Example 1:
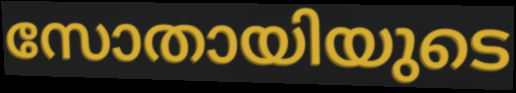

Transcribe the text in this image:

സോതായിയുടെ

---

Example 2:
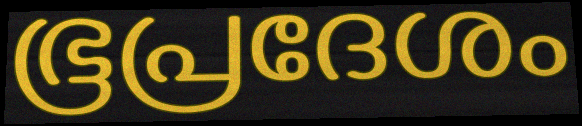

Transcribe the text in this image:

ഭൂപ്രദേശം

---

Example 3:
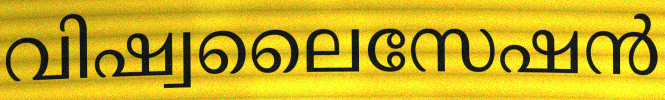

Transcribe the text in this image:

വിഷ്വലൈസേഷൻ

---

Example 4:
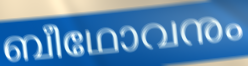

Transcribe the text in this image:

ബീഥോവനും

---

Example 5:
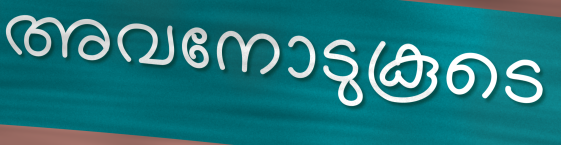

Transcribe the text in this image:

അവനോടുകൂടെ